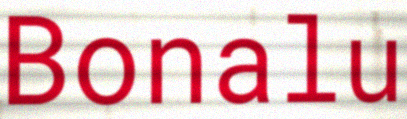
Bonalu